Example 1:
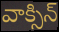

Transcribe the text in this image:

వాక్సిన్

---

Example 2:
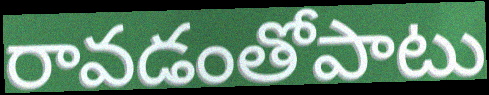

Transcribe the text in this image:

రావడంతోపాటు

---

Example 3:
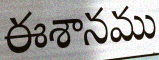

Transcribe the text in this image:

ఈశానము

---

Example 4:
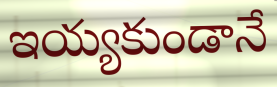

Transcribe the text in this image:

ఇయ్యకుండానే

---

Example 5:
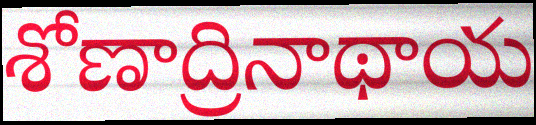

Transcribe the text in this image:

శోణాద్రినాథాయ